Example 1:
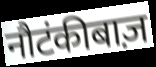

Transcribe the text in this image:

नौटंकीबाज़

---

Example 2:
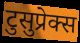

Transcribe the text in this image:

टुसुप्रेक्स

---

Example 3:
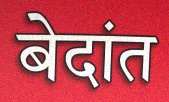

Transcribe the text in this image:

बेदांत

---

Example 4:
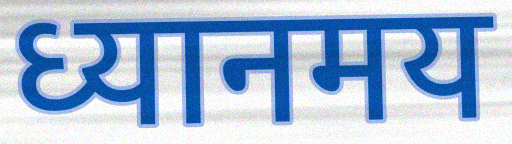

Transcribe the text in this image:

ध्यानमय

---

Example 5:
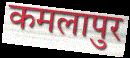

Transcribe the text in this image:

कमलापुर